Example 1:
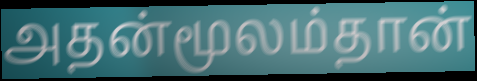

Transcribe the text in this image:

அதன்மூலம்தான்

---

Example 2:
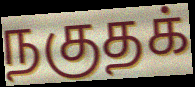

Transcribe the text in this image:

நகுதக்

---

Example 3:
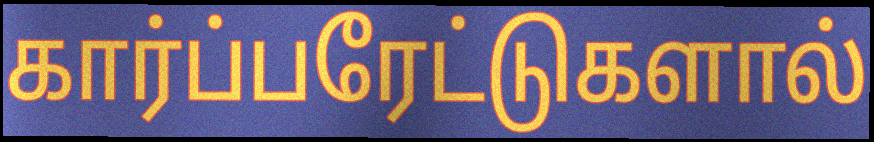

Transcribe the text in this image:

கார்ப்பரேட்டுகளால்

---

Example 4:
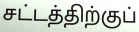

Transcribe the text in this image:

சட்டத்திற்குப்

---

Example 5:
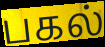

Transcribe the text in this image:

பகல்